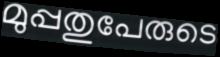
മുപ്പതുപേരുടെ